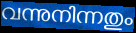
വന്നുനിന്നതും